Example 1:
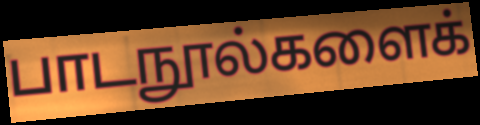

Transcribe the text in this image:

பாடநூல்களைக்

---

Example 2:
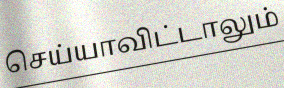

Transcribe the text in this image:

செய்யாவிட்டாலும்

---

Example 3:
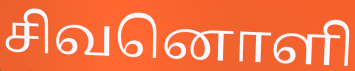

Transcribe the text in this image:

சிவனொளி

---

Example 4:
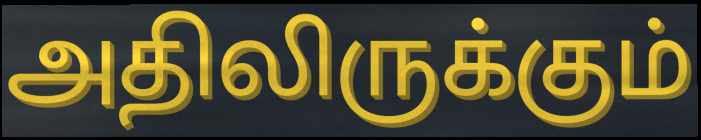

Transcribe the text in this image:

அதிலிருக்கும்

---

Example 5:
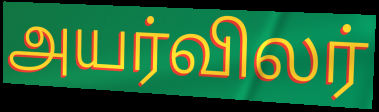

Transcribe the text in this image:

அயர்விலர்